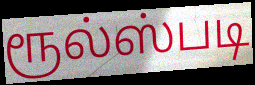
ரூல்ஸ்படி